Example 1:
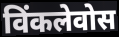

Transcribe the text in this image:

विंकलेवोस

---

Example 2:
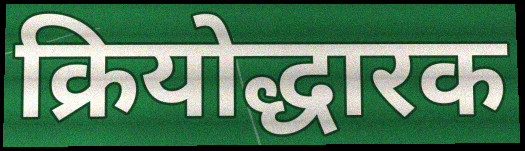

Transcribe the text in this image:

क्रियोद्धारक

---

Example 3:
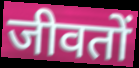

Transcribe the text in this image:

जीवतों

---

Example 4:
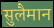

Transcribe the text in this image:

सुलैमान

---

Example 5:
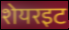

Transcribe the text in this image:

शेयरइट